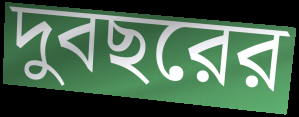
দুবছরের